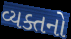
વ્યક્તનો